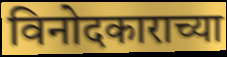
विनोदकाराच्या